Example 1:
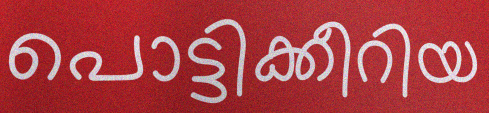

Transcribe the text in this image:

പൊട്ടിക്കീറിയ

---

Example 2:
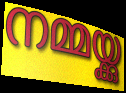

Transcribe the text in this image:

നമ്മയ്ക്കു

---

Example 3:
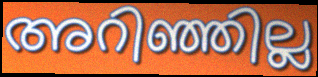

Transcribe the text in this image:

അറിഞ്ഞില്ല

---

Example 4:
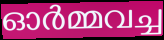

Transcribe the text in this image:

ഓർമ്മവച്ച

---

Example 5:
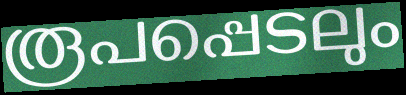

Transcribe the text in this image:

രൂപപ്പെടലും